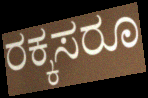
ರಕ್ಕಸರೂ